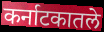
कर्नाटकातले